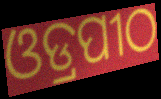
ଓଡ୍ରପୀଠ